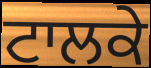
ਟਾਲਕੇ